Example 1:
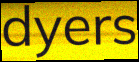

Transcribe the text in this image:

dyers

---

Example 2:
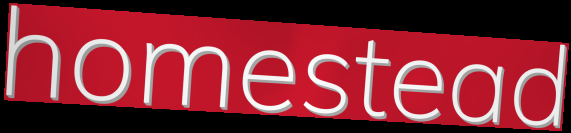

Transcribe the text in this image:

homestead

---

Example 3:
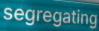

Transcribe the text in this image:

segregating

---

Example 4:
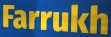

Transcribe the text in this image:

Farrukh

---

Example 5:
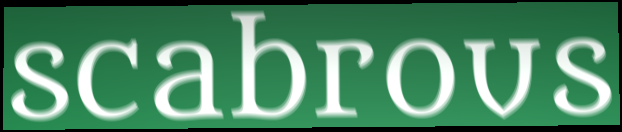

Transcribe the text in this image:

scabrous